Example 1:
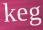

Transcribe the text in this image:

keg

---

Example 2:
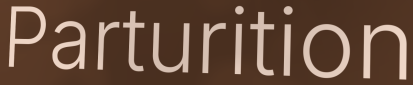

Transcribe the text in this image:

Parturition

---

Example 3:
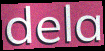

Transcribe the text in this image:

dela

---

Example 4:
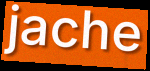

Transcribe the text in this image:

jache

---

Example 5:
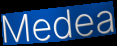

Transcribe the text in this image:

Medea